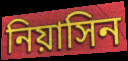
নিয়াসিন